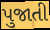
પુજાતી